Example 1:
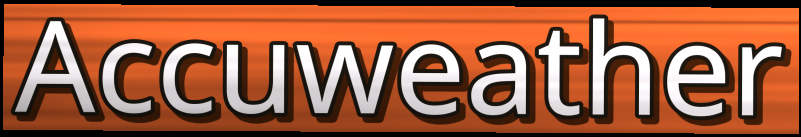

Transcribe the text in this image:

Accuweather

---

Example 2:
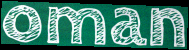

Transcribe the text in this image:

oman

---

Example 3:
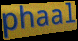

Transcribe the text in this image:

phaal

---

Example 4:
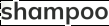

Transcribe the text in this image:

shampoo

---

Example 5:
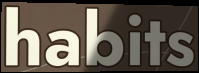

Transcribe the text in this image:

habits